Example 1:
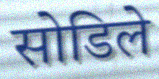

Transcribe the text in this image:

सोडिले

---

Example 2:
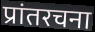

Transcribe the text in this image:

प्रांतरचना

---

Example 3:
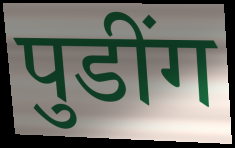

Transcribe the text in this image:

पुडींग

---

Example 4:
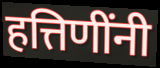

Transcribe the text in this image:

हत्तिणींनी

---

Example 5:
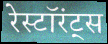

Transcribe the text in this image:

रेस्टॉरंट्स